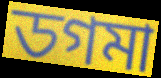
ডগমা